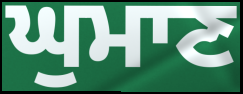
ਘੁਮਾਣ